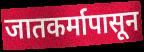
जातकर्मापासून